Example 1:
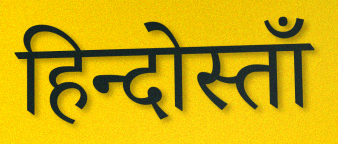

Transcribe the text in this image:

हिन्दोस्ताँ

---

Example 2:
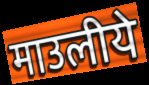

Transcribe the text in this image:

माउलीये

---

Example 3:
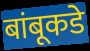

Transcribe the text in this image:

बांबूकडे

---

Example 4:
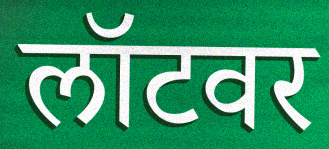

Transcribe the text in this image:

लॉटवर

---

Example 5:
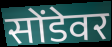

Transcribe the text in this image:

सोंडेवर